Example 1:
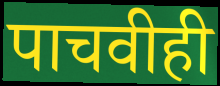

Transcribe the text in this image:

पाचवीही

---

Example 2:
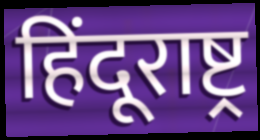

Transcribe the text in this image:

हिंदूराष्ट्र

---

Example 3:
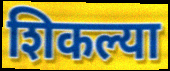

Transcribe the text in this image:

शिकल्या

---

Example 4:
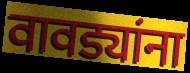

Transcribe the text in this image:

वावड्यांना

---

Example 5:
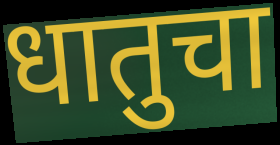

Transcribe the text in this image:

धातुचा